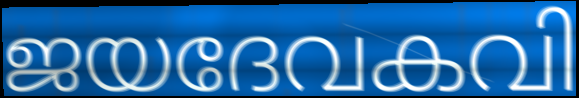
ജയദേവകവി